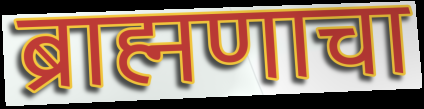
ब्राह्मणाचा